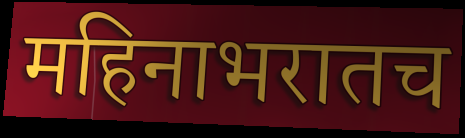
महिनाभरातच